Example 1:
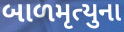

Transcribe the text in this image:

બાળમૃત્યુના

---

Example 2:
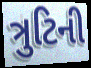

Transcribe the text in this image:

ત્રુટિની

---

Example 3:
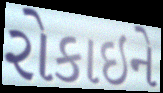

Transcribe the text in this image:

રોકાઇને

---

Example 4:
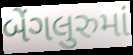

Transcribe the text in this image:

બેંગલુરુમાં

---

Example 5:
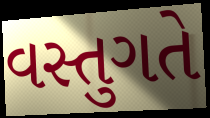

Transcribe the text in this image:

વસ્તુગતે